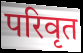
परिवृत